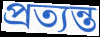
প্রত্যন্ত